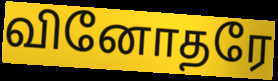
வினோதரே